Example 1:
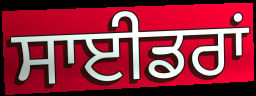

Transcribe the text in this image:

ਸਾਈਡਰਾਂ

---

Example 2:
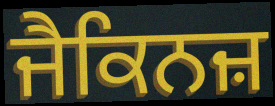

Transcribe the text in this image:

ਜੈਕਿਨਜ਼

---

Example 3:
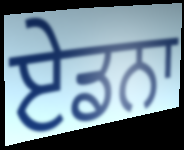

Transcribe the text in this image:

ਏਡਨਾ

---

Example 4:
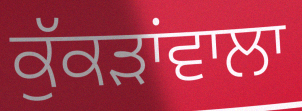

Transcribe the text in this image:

ਕੁੱਕੜਾਂਵਾਲਾ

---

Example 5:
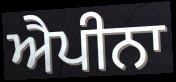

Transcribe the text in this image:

ਐਪੀਨਾ